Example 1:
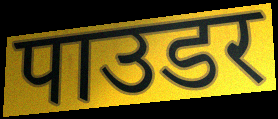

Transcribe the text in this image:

पाउडर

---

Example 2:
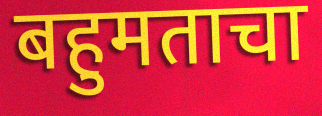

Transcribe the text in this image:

बहुमताचा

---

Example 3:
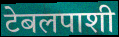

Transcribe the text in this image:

टेबलपाशी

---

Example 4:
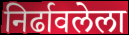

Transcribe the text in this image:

निर्ढावलेला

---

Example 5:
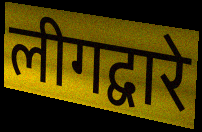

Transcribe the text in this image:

लीगद्वारे